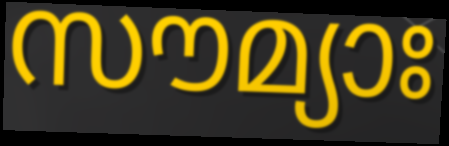
സൗമ്യാഃ